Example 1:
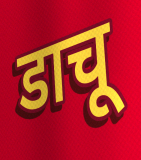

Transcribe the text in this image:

डाचू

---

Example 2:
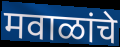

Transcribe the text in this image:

मवाळांचे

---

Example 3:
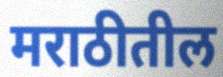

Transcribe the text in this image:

मराठीतील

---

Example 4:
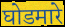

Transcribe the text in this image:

घोडमारे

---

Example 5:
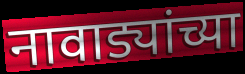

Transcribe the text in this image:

नावाड्यांच्या